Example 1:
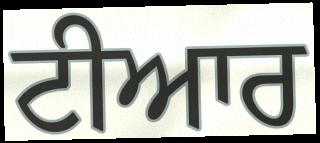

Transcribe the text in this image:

ਟੀਆਰ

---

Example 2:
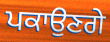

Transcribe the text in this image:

ਪਕਾਉਣਗੇ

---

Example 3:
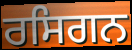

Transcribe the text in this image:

ਰਸਿਗਨ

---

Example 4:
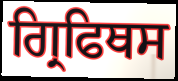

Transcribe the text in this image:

ਗ੍ਰਿਫਿਥਸ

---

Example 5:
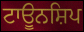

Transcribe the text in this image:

ਟਾਊਨਸ਼ਿਪ